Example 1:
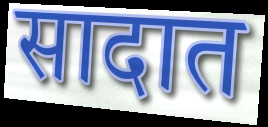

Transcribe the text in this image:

सादात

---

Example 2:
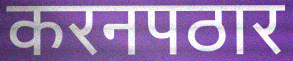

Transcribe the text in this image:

करनपठार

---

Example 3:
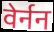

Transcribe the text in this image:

वेर्नन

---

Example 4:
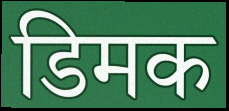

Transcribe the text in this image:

डिमक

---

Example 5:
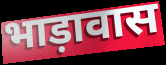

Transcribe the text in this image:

भाड़ावास